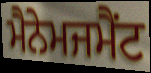
ਮੈਨੇਮਜਮੈਂਟ